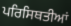
ਪਰਿਸਿਥਤੀਆਂ